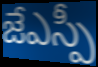
జేఎస్పీ